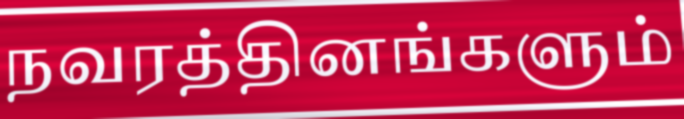
நவரத்தினங்களும்